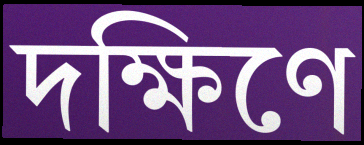
দক্ষিণে